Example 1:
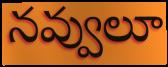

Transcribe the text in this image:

నవ్వులూ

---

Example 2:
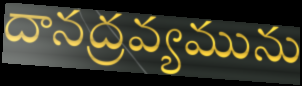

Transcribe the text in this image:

దానద్రవ్యమును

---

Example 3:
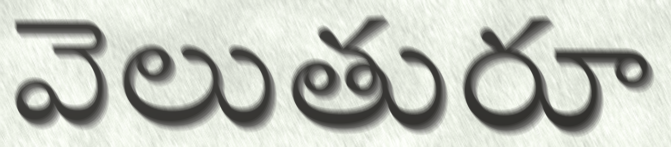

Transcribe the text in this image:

వెలుతురూ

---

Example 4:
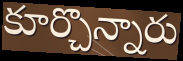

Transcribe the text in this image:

కూర్చొన్నారు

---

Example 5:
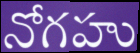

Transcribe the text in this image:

నోగహు